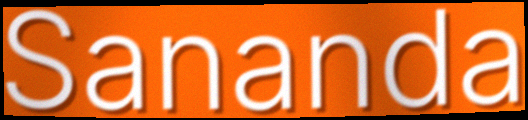
Sananda